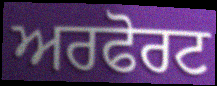
ਅਰਫੋਰਟ